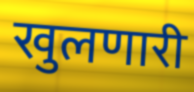
खुलणारी